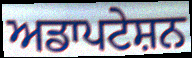
ਅਡਾਪਟੇਸ਼ਨ